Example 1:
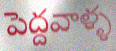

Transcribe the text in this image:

పెద్దవాళ్ళ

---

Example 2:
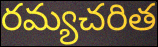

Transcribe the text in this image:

రమ్యచరిత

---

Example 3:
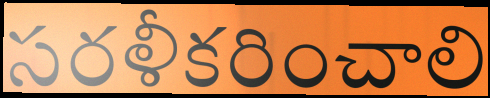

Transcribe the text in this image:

సరళీకరించాలి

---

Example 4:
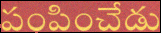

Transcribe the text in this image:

పంపించేడు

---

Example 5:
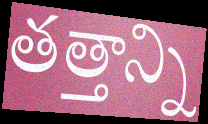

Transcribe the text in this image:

తత్తాన్ని